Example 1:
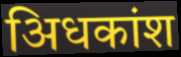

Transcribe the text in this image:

अिधकांश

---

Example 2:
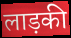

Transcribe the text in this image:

लाड़की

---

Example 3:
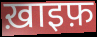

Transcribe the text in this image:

ख़ाइफ़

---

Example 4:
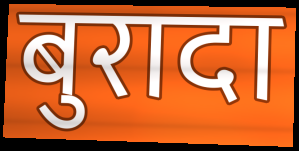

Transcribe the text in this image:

बुरादा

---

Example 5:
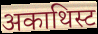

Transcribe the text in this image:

अकाथिस्ट